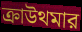
ক্রাউথমার